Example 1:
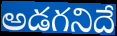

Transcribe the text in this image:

అడగనిదే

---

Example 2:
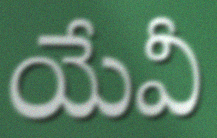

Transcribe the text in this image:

యేవీ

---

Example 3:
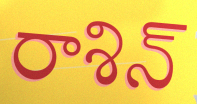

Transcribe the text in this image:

రాశిన్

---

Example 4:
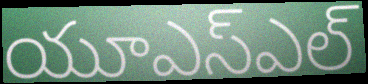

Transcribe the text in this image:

యూఎస్ఎల్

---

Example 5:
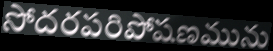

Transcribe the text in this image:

సోదరపరిపోషణమును